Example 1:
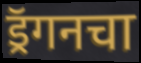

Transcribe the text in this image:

ड्रॅगनचा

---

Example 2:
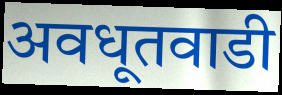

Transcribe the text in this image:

अवधूतवाडी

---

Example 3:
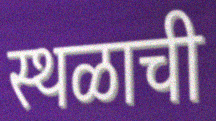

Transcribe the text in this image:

स्थळाची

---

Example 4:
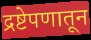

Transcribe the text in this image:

द्रष्टेपणातून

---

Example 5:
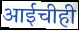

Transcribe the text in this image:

आईचीही